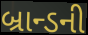
બ્રાન્ડની